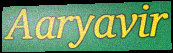
Aaryavir